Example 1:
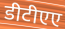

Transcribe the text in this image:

डीटीएए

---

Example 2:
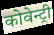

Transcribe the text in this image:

कोवेन्ट्री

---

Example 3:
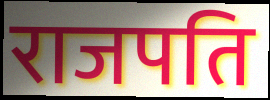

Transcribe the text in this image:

राजपति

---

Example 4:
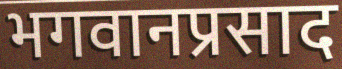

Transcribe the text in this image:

भगवानप्रसाद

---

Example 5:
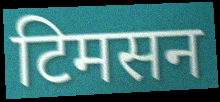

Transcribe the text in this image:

टिमसन